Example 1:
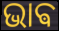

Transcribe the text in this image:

ଭାଵ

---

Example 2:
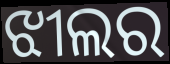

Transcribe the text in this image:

ଝୀଲର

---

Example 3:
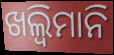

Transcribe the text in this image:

ଖଲ୍ୱିମାନି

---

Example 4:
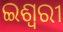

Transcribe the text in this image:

ଇଶ୍ୱରୀ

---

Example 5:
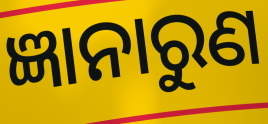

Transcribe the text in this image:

ଜ୍ଞାନାରୁଣ